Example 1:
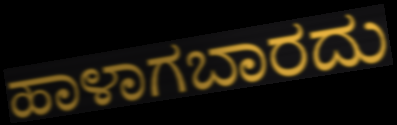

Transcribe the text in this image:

ಹಾಳಾಗಬಾರದು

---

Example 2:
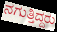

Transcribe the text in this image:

ನಗುತ್ತಿದ್ದರು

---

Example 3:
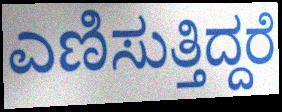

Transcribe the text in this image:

ಎಣಿಸುತ್ತಿದ್ದರೆ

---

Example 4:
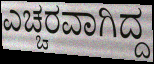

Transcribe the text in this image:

ಎಚ್ಚರವಾಗಿದ್ದ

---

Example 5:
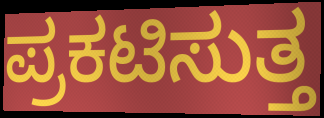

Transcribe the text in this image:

ಪ್ರಕಟಿಸುತ್ತ